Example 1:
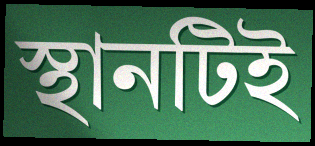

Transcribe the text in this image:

স্থানটিই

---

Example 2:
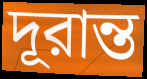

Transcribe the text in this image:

দূরান্ত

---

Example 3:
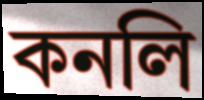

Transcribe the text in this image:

কনলি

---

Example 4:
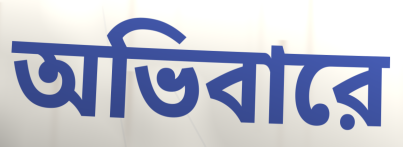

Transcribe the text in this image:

অভিবারে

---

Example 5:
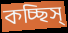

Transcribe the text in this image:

কচ্ছিস্